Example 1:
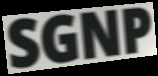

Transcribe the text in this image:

SGNP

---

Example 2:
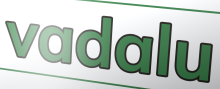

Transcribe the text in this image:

vadalu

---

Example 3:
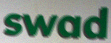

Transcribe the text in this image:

swad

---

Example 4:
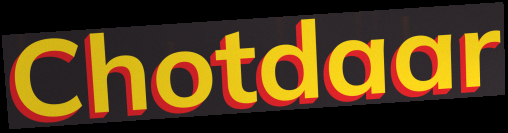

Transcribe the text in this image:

Chotdaar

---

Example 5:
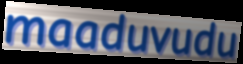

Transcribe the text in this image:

maaduvudu